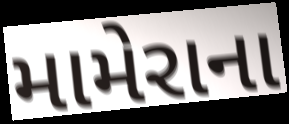
મામેરાના